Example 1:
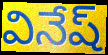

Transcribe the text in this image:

వినేష్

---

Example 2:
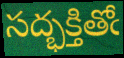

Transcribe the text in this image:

సద్భక్తితోఁ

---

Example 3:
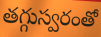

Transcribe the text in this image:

తగ్గుస్వరంతో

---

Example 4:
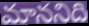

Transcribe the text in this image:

మాననిది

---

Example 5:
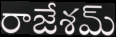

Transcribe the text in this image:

రాజేశమ్